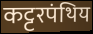
कट्टरपंथिय